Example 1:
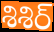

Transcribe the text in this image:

శిశిర్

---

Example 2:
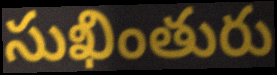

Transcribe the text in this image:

సుఖింతురు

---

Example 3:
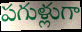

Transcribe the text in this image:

పగుళ్లుగా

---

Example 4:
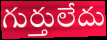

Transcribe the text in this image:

గుర్తులేదు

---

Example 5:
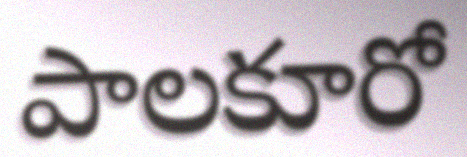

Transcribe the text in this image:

పాలకూరో